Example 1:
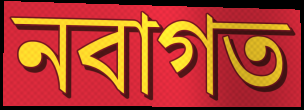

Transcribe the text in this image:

নবাগত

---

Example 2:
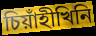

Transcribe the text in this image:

চিয়াঁহীখিনি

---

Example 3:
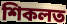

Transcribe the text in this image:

শিকলত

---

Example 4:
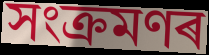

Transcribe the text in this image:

সংক্ৰমণৰ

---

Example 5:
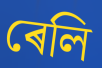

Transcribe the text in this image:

ৰেলি